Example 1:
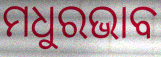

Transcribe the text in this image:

ମଧୁରଭାବ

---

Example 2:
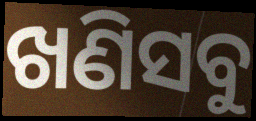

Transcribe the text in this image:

ଖଣିସବୁ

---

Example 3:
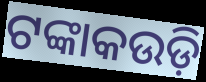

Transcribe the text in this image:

ଟଙ୍କାକଉଡ଼ି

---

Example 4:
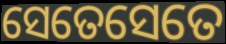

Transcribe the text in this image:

ସେତେସେତେ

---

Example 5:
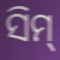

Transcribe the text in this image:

ସିମ୍